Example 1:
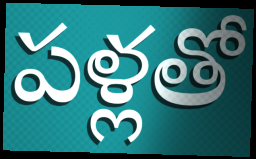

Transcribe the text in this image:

పళ్లతో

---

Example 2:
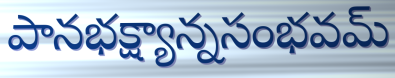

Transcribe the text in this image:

పానభక్ష్యాన్నసంభవమ్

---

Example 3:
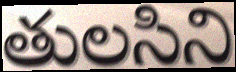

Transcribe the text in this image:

తులసిని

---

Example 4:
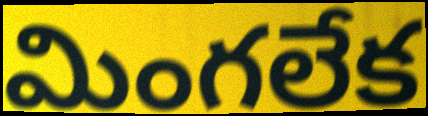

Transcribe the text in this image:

మింగలేక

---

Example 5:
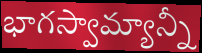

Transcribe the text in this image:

భాగస్వామ్యాన్నీ